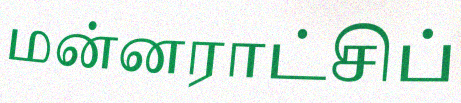
மன்னராட்சிப்